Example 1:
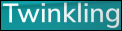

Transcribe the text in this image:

Twinkling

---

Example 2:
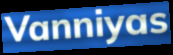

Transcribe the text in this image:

Vanniyas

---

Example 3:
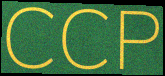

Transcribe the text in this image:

CCP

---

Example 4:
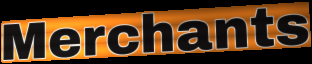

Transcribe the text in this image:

Merchants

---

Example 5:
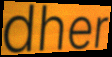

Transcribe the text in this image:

dher